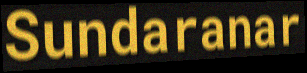
Sundaranar